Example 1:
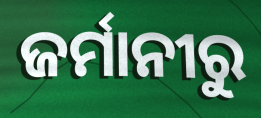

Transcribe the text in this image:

ଜର୍ମାନୀରୁ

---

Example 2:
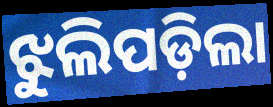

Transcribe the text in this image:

ଝୁଲିପଡ଼ିଲା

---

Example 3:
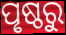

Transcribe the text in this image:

ପୃଷ୍ଠରୁ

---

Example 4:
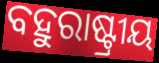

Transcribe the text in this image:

ବହୁରାଷ୍ଟ୍ରୀୟ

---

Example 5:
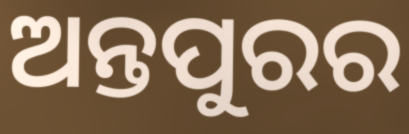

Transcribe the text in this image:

ଅନ୍ତପୁରର